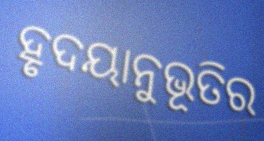
ହୃଦୟାନୁଭୂତିର